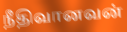
நீதிவானவன்